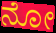
ನೋ